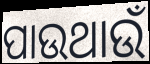
ପାଉଥାଉଁ